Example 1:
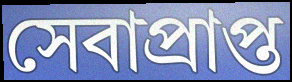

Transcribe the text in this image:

সেবাপ্রাপ্ত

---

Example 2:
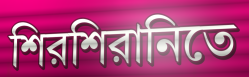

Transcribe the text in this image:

শিরশিরানিতে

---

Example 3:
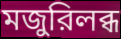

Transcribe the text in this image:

মজুরিলব্ধ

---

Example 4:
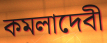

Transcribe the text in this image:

কমলাদেবী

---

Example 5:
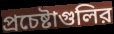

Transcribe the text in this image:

প্রচেষ্টাগুলির